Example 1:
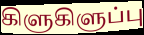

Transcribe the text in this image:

கிளுகிளுப்பு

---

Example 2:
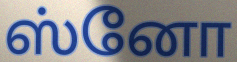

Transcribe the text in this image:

ஸ்னோ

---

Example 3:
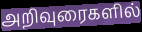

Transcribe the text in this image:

அறிவுரைகளில்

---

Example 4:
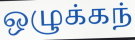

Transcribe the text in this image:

ஒழுக்கந்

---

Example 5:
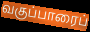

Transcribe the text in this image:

வகுப்பாரைப்